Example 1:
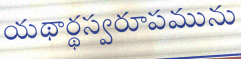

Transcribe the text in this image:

యథార్థస్వరూపమును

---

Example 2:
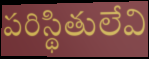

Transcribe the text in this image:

పరిస్థితులేవి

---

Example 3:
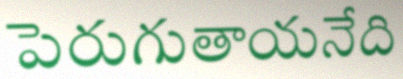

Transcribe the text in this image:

పెరుగుతాయనేది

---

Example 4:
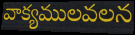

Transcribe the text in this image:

వాక్యములవలన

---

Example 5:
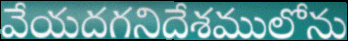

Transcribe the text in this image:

వేయదగనిదేశములోను